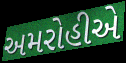
અમરોહીએ